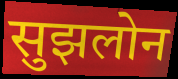
सुझलोन